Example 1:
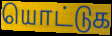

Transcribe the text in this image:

யொட்டுக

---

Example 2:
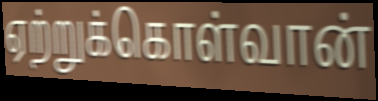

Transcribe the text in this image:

ஏற்றுக்கொள்வான்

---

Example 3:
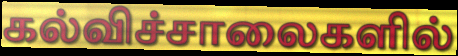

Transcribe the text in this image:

கல்விச்சாலைகளில்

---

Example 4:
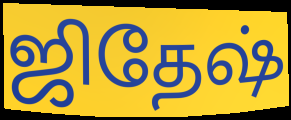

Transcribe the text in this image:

ஜிதேஷ்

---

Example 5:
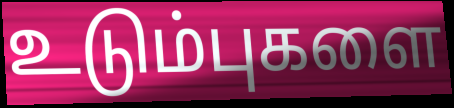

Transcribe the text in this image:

உடும்புகளை